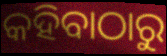
କହିବାଠାରୁ